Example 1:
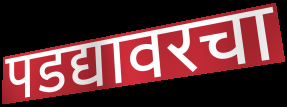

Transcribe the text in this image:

पडद्यावरचा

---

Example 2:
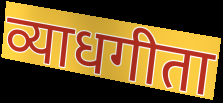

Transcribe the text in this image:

व्याधगीता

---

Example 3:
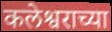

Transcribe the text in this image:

कलेश्वराच्या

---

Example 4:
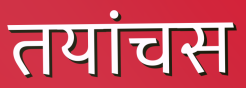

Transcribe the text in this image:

तयांचस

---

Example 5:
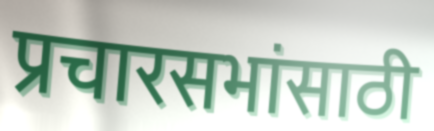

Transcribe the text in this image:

प्रचारसभांसाठी